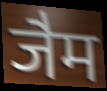
जैम